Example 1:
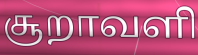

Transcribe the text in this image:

சூறாவளி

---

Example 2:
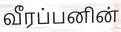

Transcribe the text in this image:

வீரப்பனின்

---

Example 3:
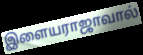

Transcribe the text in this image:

இளையராஜாவால்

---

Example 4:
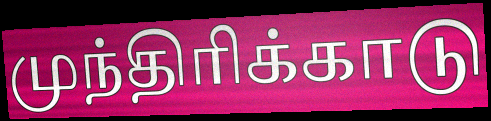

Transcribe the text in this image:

முந்திரிக்காடு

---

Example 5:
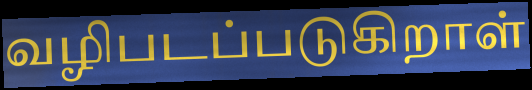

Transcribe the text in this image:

வழிபடப்படுகிறாள்